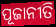
ପୂଜାନୀତି